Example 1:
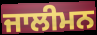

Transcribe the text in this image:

ਜਾਲੀਮਨ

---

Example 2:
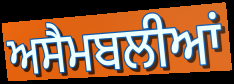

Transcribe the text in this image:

ਅਸੈਮਬਲੀਆਂ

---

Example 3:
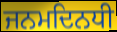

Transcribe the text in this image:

ਜਨਮਦਿਨਧੀ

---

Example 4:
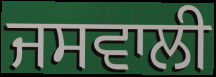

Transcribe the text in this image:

ਜਸਵਾਲੀ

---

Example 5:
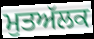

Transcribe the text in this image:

ਮੁਤਅੱਲਕ